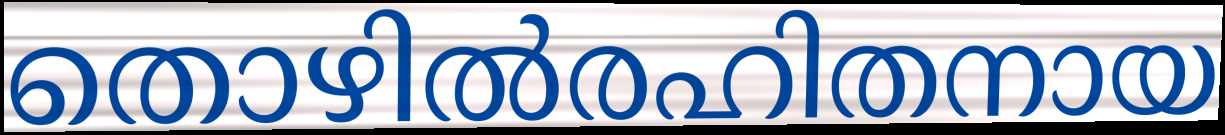
തൊഴിൽരഹിതനായ